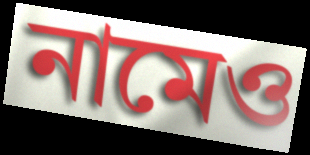
নামেও